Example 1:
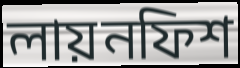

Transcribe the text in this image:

লায়নফিশ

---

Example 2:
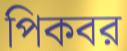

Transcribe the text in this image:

পিকবর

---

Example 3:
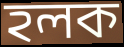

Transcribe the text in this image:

হলক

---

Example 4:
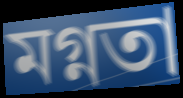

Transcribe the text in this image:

মগ্নতা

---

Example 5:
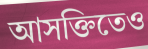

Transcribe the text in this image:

আসক্তিতেও